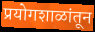
प्रयोगशाळांतून